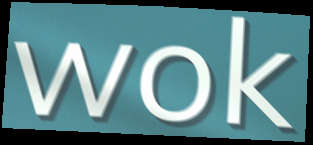
wok